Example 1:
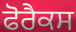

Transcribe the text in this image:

ਫੋਰੈਕਸ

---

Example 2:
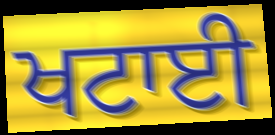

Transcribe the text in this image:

ਖਟਾਈ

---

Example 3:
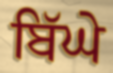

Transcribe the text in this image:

ਬਿੱਘੇ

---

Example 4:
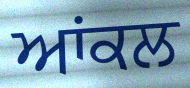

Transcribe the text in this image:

ਆਂਕਲ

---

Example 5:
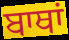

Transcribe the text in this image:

ਬਾਥਾਂ